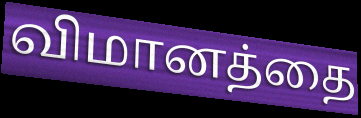
விமானத்தை